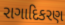
રાગાદિકરણ